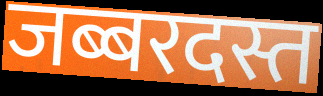
जब्बरदस्त